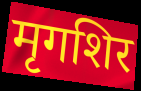
मृगशिर